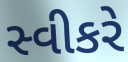
સ્વીકરે